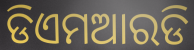
ଡିଏମଆରଡି